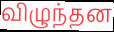
விழுந்தன